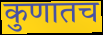
कुणातच